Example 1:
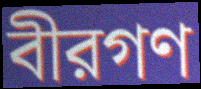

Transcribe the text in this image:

বীরগণ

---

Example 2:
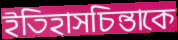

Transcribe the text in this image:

ইতিহাসচিন্তাকে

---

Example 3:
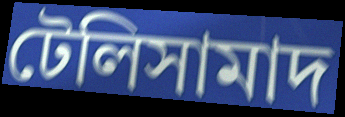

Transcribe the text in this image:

টেলিসামাদ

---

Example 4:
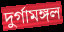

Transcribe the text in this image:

দুর্গামঙ্গল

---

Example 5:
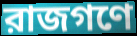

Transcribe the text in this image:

রাজগণে